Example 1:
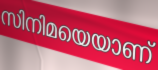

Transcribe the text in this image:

സിനിമയെയാണ്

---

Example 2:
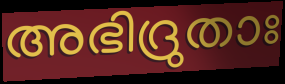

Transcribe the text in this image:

അഭിദ്രുതാഃ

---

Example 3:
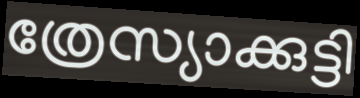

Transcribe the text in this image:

ത്രേസ്യാക്കുട്ടി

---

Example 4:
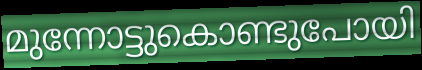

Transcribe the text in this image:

മുന്നോട്ടുകൊണ്ടുപോയി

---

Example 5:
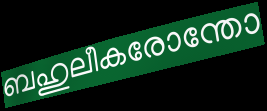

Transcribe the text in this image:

ബഹുലീകരോന്തോ